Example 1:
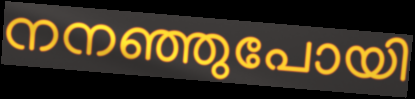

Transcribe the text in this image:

നനഞ്ഞുപോയി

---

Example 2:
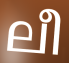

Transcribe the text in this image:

ലീ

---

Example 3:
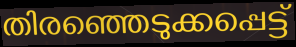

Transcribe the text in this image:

തിരഞ്ഞെടുക്കപ്പെട്ട്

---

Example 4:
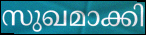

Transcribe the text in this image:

സുഖമാക്കി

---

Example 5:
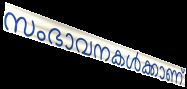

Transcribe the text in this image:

സംഭാവനകൾക്കാണ്